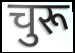
चुरू